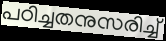
പഠിച്ചതനുസരിച്ച്